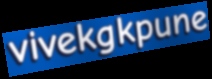
vivekgkpune